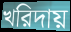
খরিদায়